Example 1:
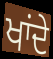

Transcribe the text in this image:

ਖਾਂਦੇ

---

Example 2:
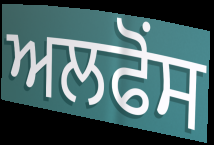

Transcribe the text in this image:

ਅਲਫੋਂਸ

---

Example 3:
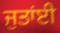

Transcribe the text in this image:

ਜੁਤਾਂਈ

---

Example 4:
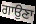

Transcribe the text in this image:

ਗਾਉਣਾ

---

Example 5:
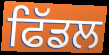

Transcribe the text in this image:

ਫਿੱਡਲ